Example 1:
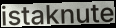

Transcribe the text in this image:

istaknute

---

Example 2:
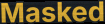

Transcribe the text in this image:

Masked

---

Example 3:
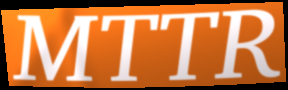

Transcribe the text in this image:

MTTR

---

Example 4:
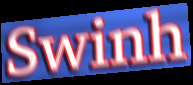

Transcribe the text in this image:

Swinh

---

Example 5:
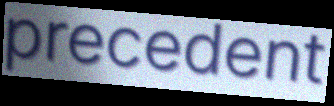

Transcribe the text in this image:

precedent